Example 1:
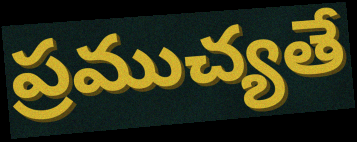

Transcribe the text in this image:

ప్రముచ్యతే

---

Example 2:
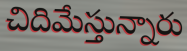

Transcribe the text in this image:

చిదిమేస్తున్నారు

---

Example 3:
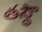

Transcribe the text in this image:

తస్థౌ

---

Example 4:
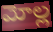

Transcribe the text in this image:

మోల్ల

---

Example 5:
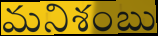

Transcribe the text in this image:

మనిశంబు